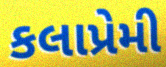
કલાપ્રેમી